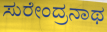
ಸುರೇಂದ್ರನಾಥ